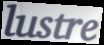
lustre